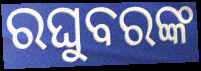
ରଘୁବରଙ୍କ